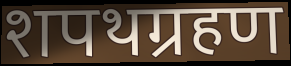
शपथग्रहण